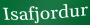
Isafjordur